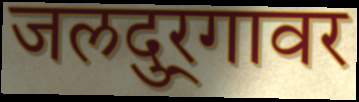
जलदुर्गावर